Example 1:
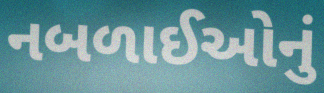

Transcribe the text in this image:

નબળાઈઓનું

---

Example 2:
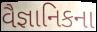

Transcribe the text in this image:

વૈજ્ઞાનિકના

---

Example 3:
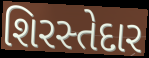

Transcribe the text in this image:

શિરસ્તેદાર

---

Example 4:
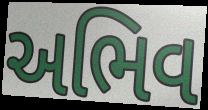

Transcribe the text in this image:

અભિવ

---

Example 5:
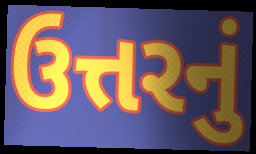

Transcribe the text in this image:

ઉત્તરનું